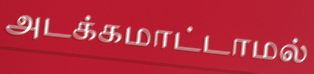
அடக்கமாட்டாமல்